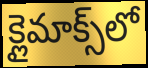
క్లైమాక్స్‌లో